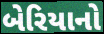
બેરિયાનો